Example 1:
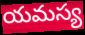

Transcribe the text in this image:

యమస్య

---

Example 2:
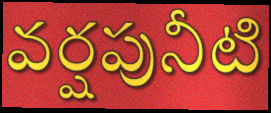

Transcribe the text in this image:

వర్షపునీటి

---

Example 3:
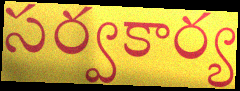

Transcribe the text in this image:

సర్వకార్య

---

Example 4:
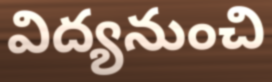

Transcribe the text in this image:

విద్యనుంచి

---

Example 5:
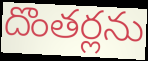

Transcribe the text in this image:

దొంతర్లను